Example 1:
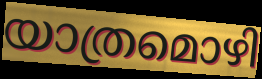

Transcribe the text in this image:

യാത്രമൊഴി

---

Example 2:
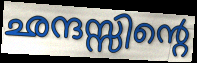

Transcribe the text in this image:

ഛന്ദസ്സിന്റെ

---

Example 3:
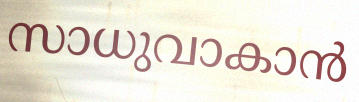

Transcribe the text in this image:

സാധുവാകാൻ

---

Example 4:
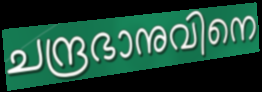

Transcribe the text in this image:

ചന്ദ്രഭാനുവിനെ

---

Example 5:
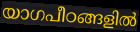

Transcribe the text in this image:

യാഗപീഠങ്ങളിൽ